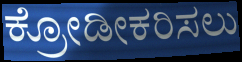
ಕ್ರೋಡೀಕರಿಸಲು